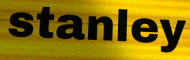
stanley